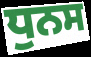
ਧੁਨਸ